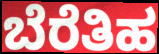
ಬೆರೆತಿಹ